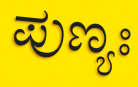
ಪುಣ್ಯಃ